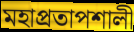
মহাপ্রতাপশালী